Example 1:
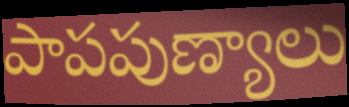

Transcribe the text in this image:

పాపపుణ్యాలు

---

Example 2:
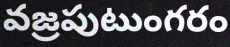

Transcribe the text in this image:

వజ్రపుటుంగరం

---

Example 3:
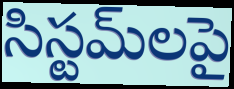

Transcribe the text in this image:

సిస్టమ్‌లపై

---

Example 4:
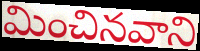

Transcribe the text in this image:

మించినవాని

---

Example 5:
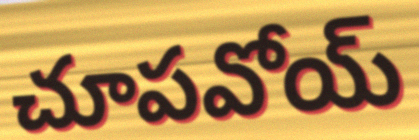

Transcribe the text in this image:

చూపవోయ్